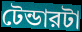
টেন্ডারটা